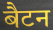
बैटन